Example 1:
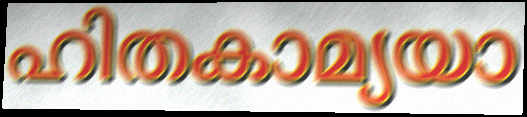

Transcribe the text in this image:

ഹിതകാമ്യയാ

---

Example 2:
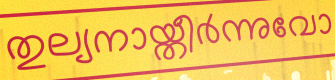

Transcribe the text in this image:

തുല്യനായ്തീർന്നുവോ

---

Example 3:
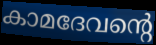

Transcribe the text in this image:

കാമദേവന്റെ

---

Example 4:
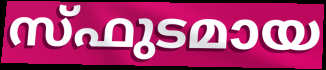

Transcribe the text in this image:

സ്ഫുടമായ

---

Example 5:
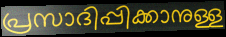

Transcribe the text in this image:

പ്രസാദിപ്പിക്കാനുള്ള